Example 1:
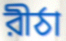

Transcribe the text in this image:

রীঠা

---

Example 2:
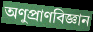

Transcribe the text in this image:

অণুপ্রাণবিজ্ঞান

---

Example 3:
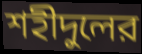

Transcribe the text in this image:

শহীদুলের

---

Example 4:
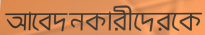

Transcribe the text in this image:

আবেদনকারীদেরকে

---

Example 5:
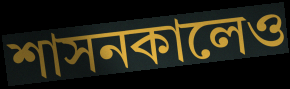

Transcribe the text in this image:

শাসনকালেও